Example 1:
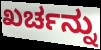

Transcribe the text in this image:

ಖರ್ಚನ್ನು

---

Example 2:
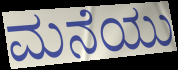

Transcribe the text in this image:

ಮನೆಯು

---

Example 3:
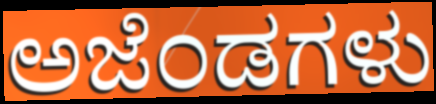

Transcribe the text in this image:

ಅಜೆಂಡಗಳು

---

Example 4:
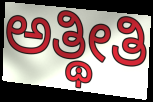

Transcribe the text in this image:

ಅತ್ಥೀತಿ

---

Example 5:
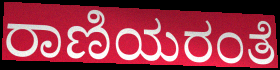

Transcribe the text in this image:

ರಾಣಿಯರಂತೆ